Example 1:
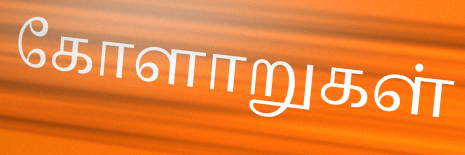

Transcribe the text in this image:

கோளாறுகள்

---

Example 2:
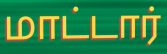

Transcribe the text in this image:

மாட்டார்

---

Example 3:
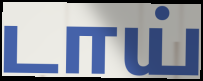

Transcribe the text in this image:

டாய்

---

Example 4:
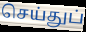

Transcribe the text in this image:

செய்துப்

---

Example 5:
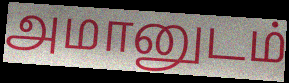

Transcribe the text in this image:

அமானுடம்